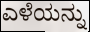
ಎಳೆಯನ್ನು